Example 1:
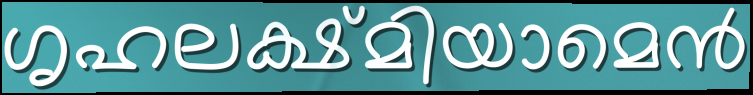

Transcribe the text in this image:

ഗൃഹലക്ഷ്മിയാമെൻ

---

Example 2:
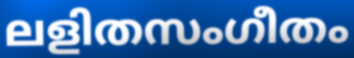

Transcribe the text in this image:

ലളിതസംഗീതം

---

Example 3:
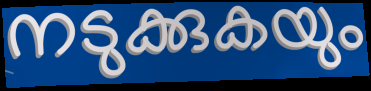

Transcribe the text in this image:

നടുക്കുകയും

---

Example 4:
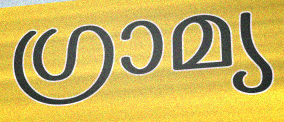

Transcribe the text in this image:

ഗ്രാമ്യ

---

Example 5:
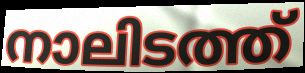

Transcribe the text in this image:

നാലിടത്ത്